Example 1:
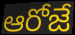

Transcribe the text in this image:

ఆరోజే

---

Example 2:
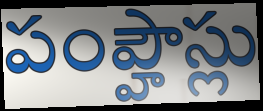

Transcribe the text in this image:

పంప్హౌస్లు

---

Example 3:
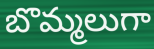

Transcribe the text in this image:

బొమ్మలుగా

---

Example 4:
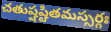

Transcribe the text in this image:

చతుష్షష్టితమస్సర్గః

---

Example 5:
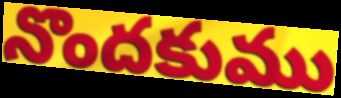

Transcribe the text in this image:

నొందకుము